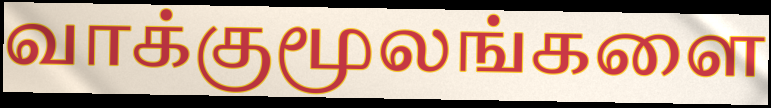
வாக்குமூலங்களை